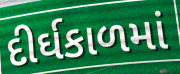
દીર્ઘકાળમાં